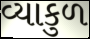
વ્યાકુળ